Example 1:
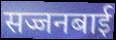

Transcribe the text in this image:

सज्जनबाई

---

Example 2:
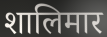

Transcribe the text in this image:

शालिमार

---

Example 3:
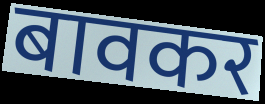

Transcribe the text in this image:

बावकर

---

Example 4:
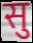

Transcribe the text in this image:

सु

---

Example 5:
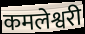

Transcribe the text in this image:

कमलेश्वरी